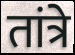
तांत्रे